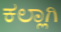
ಕಲ್ಲಾಗಿ